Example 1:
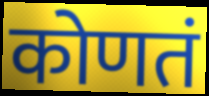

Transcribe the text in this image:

कोणतं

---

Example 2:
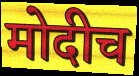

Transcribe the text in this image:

मोदीच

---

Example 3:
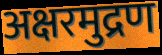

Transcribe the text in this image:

अक्षरमुद्रण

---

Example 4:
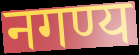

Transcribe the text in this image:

नगण्य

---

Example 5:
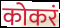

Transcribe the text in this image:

कोकरं